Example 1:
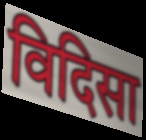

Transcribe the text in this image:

विदिसा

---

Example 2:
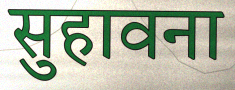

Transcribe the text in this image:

सुहावना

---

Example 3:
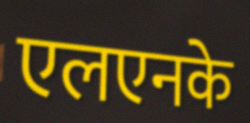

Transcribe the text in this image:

एलएनके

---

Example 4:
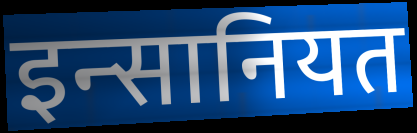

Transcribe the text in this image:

इन्सानियत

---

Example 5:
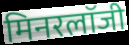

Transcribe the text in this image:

मिनरलॉजी